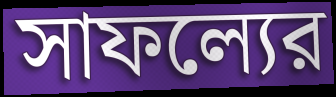
সাফল্যের